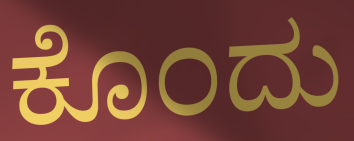
ಕೊಂದು